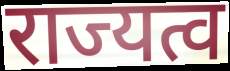
राज्यत्व